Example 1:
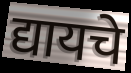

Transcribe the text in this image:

द्यायचे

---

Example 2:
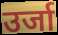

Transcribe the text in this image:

उर्जा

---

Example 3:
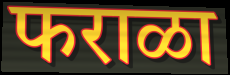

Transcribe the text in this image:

फराळा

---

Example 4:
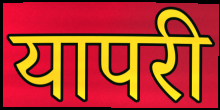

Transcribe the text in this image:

यापरी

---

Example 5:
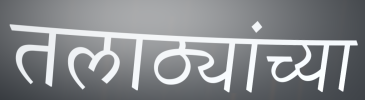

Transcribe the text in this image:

तलाठ्यांच्या